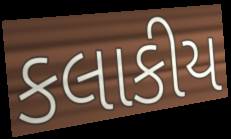
કલાકીય